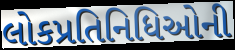
લોકપ્રતિનિધિઓની